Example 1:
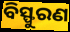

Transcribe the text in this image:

ବିସ୍ଫୁରଣ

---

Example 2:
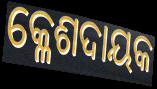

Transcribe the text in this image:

କ୍ଳେଶଦାୟକ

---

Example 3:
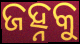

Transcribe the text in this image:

ଜହ୍ନକୁ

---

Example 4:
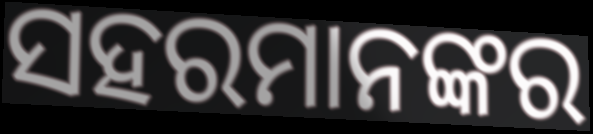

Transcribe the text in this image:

ସହରମାନଙ୍କର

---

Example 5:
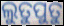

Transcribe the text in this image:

ଲୁତୁପୁତୁ